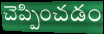
చెప్పించడం